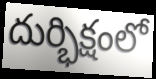
దుర్భిక్షంలో